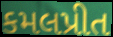
કમલપ્રીત